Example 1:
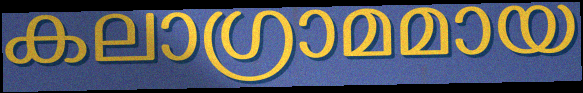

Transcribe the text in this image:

കലാഗ്രാമമായ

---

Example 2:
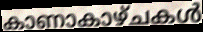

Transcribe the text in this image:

കാണാകാഴ്ചകൾ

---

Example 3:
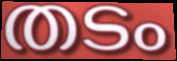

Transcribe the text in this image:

തടം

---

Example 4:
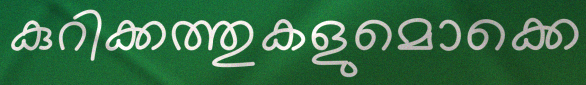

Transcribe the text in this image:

കുറിക്കത്തുകളുമൊക്കെ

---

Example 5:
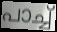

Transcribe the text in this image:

പാച്ച്